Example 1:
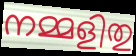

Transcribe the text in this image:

നമ്മളിതു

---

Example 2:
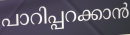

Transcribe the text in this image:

പാറിപ്പറക്കാൻ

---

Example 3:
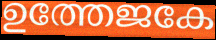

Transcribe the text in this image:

ഉത്തേജകേ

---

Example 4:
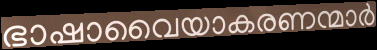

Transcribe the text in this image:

ഭാഷാവൈയാകരണന്മാർ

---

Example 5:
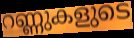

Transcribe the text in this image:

റണ്ണുകളുടെ